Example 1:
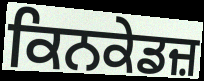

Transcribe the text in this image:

ਕਿਨਕੇਡਜ਼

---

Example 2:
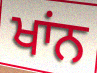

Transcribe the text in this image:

ਖਾਂਨ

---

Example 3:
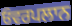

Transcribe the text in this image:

ਓਵਰਪਲਾਨ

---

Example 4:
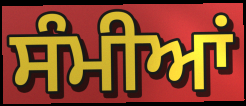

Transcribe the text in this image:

ਸੰਮੀਆਂ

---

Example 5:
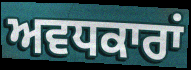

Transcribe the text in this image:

ਅਵਧਕਾਰਾਂ